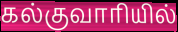
கல்குவாரியில்